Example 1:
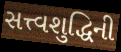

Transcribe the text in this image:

સત્ત્વશુદ્ધિની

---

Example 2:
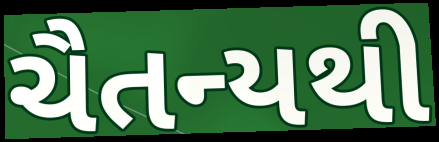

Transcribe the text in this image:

ચૈતન્યથી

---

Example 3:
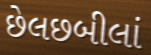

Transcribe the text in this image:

છેલછબીલાં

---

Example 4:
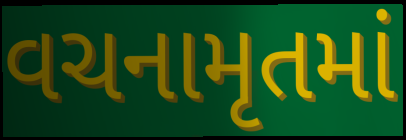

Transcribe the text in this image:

વચનામૃતમાં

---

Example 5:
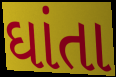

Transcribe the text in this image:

ઘાંતા